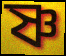
ষ্ণ